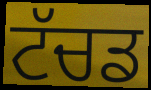
ਟੱਚਡ